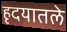
हृदयातले